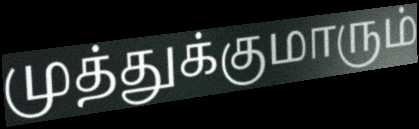
முத்துக்குமாரும்